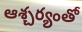
ఆశ్చర్యంతో